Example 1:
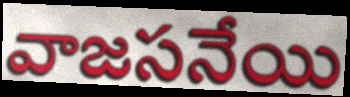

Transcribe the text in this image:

వాజసనేయి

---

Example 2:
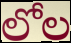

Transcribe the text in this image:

లోల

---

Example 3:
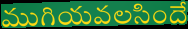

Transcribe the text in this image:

ముగియవలసిందే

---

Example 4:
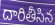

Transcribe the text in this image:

దారితీసిన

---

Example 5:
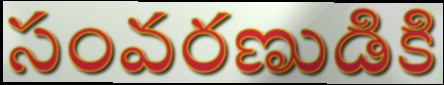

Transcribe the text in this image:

సంవరణుడికి